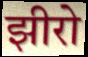
झीरो